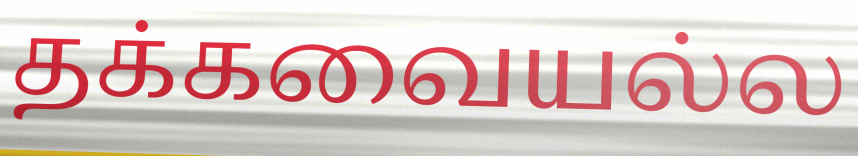
தக்கவையல்ல